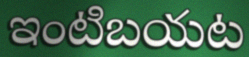
ఇంటిబయట